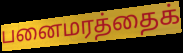
பனைமரத்தைக்